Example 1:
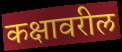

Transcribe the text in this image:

कक्षावरील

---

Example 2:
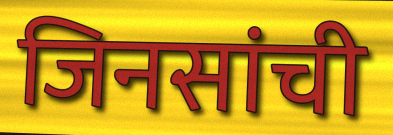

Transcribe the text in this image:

जिनसांची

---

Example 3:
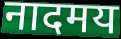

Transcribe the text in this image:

नादमय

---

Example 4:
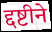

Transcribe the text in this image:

द्दष्टीने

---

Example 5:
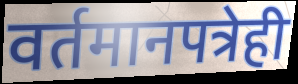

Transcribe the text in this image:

वर्तमानपत्रेही